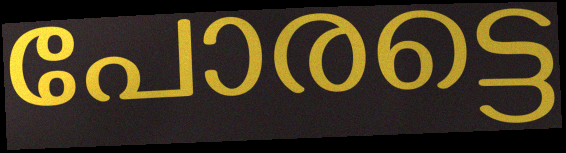
പോരട്ടെ